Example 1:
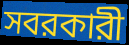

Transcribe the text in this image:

সবরকারী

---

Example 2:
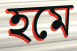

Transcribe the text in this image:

হমে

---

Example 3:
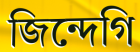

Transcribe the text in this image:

জিন্দেগি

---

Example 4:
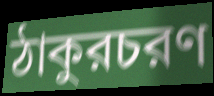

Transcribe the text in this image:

ঠাকুরচরণ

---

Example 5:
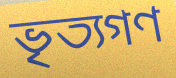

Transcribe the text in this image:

ভৃত্যগণ